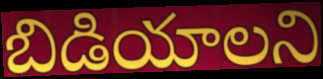
బిడియాలని